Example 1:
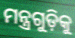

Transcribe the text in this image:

ମନ୍ତ୍ରଗୁଡ଼ିକୁ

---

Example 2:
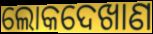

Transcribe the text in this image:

ଲୋକଦେଖାଣ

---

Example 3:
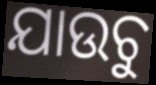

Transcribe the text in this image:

ଯାଉଚୁ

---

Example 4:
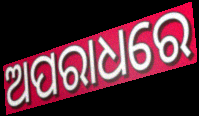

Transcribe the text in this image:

ଅପରାଧରେ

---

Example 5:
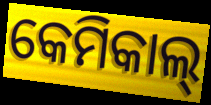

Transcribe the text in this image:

କେମିକାଲ୍